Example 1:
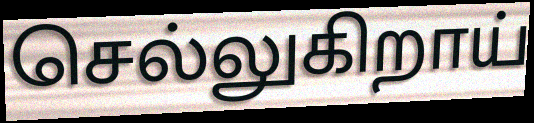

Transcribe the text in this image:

செல்லுகிறாய்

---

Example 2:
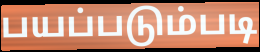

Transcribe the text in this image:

பயப்படும்படி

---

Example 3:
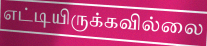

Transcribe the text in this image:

எட்டியிருக்கவில்லை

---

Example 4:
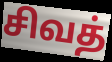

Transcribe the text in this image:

சிவத்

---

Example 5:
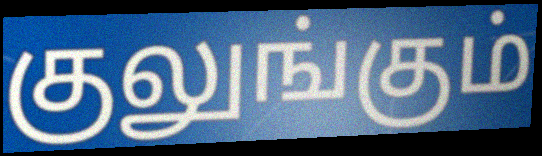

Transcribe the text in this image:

குலுங்கும்